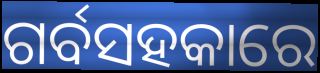
ଗର୍ବସହକାରେ